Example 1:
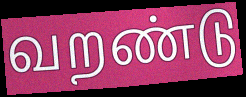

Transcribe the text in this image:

வறண்டு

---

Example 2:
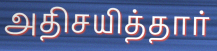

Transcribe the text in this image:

அதிசயித்தார்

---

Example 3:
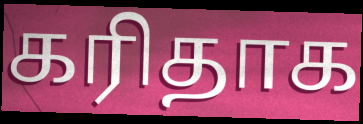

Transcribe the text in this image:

கரிதாக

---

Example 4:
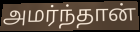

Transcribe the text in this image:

அமர்ந்தான்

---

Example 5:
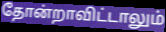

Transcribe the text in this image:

தோன்றாவிட்டாலும்